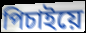
পিচাইয়ে